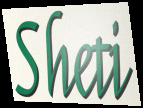
Sheti